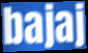
bajaj